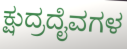
ಕ್ಷುದ್ರದೈವಗಳ